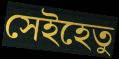
সেইহেতু